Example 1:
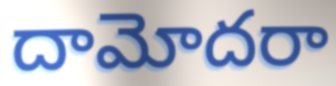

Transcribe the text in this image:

దామోదరా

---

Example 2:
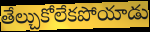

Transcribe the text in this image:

తేల్చుకోలేకపోయాడు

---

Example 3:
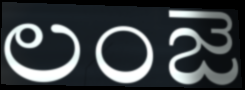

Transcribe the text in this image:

లంజె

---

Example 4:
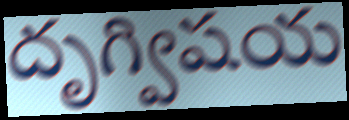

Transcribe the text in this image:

దృగ్విషయ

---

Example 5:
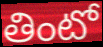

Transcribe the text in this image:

తింటో